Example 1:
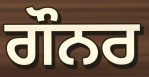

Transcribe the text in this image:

ਗੌਨਰ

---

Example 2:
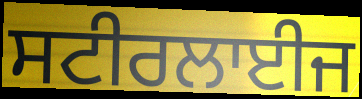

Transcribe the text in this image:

ਸਟੀਰਲਾਈਜ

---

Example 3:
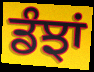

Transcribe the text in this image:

ਡੰਝਾਂ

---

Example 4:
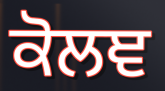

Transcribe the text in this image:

ਕੋਲਞ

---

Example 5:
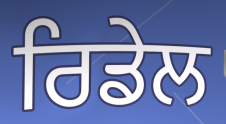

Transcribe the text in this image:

ਰਿਡੇਲ